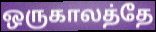
ஒருகாலத்தே